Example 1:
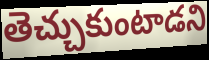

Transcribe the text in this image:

తెచ్చుకుంటాడని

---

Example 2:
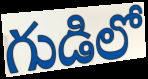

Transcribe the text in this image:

గుడిలో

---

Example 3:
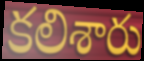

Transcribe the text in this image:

కలిశారు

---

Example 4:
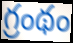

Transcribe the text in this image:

గ్రంథం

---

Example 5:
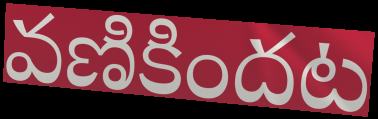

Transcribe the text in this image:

వణికిందట